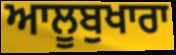
ਆਲੂਬੁਖਾਰਾ